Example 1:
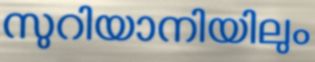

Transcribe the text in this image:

സുറിയാനിയിലും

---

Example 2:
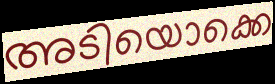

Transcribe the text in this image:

അടിയൊക്കെ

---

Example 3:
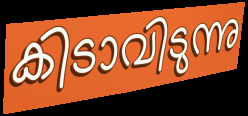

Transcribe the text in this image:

കിടാവിടുന്നു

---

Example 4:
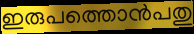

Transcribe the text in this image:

ഇരുപത്തൊൻപതു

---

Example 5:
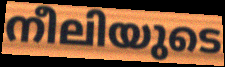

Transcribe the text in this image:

നീലിയുടെ